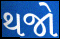
થજો